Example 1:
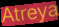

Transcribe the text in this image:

Atreya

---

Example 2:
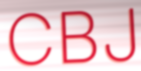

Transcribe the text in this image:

CBJ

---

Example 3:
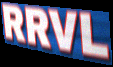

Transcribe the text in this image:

RRVL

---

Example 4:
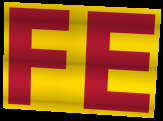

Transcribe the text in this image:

FE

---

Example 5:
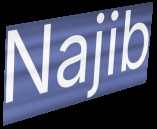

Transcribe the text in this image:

Najib